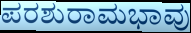
ಪರಶುರಾಮಭಾವು